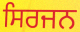
ਸਿਰਜਨ